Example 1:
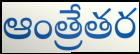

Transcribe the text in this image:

ఆంత్రేతర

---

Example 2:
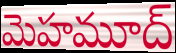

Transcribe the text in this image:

మెహమూద్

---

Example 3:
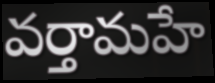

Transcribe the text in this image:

వర్తామహే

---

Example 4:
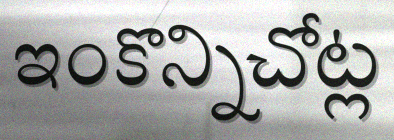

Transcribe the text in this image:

ఇంకొన్నిచోట్ల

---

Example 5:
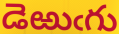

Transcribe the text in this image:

డెఱుఁగు